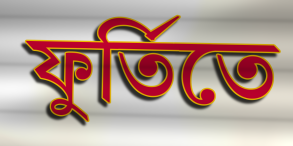
ফুর্তিতে